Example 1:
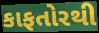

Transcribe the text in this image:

કાફતોરથી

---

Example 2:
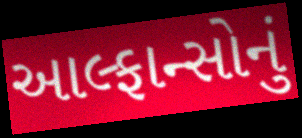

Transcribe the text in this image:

આલ્ફાન્સોનું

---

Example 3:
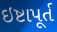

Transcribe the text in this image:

ઇષ્ટાપૂર્ત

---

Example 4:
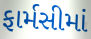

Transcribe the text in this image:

ફાર્મસીમાં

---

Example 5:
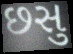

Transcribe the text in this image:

છસુ